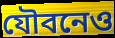
যৌবনেও